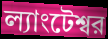
ল্যাংটেশ্বর